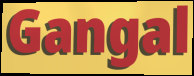
Gangal